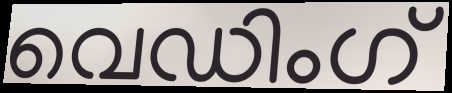
വെഡിംഗ്